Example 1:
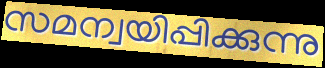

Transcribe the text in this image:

സമന്വയിപ്പിക്കുന്നു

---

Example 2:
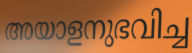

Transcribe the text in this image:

അയാളനുഭവിച്ച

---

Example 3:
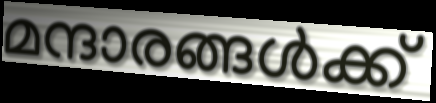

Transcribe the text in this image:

മന്ദാരങ്ങൾക്ക്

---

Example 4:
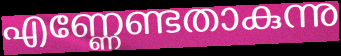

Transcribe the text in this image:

എണ്ണേണ്ടതാകുന്നു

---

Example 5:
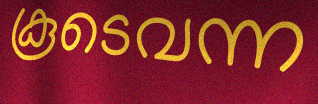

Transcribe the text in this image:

കൂടെവന്ന